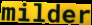
milder